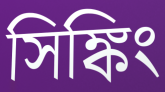
সিঙ্কিং